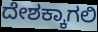
ದೇಶಕ್ಕಾಗಲಿ